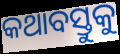
କଥାବସ୍ତୁକୁ